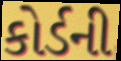
કોર્ડની